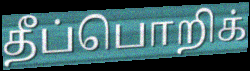
தீப்பொறிக்